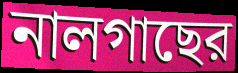
নালগাছের